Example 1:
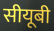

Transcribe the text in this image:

सीयूबी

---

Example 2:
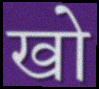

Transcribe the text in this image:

खो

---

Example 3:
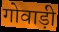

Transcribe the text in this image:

गोवाड़ी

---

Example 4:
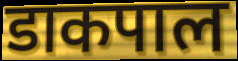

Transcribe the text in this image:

डाकपाल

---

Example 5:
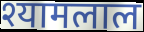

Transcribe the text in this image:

श्यामलाल